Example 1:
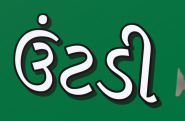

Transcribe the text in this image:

ઉંટડી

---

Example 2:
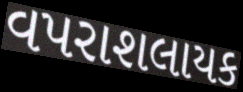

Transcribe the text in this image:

વપરાશલાયક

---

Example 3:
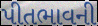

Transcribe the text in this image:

પીતભાવની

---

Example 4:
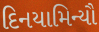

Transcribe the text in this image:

દિનયામિન્યૌ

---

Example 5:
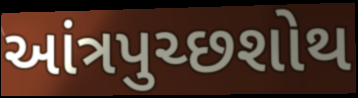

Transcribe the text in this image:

આંત્રપુચ્છશોથ